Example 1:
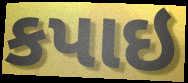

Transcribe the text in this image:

કપાઇ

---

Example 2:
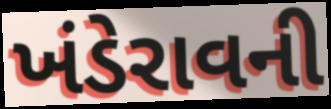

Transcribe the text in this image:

ખંડેરાવની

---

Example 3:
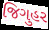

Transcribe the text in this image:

જિગુહર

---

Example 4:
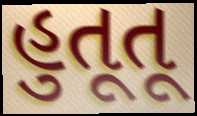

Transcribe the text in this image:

હુતૂતૂ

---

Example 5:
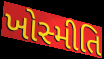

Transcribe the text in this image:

ખોસ્મીતિ